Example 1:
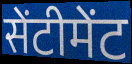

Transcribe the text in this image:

सेंटीमेंट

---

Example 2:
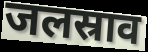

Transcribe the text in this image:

जलस्राव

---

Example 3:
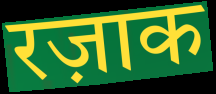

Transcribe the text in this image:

रज़ाक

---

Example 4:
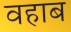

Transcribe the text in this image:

वहाब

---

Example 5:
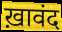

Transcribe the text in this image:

ख़ावंद